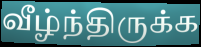
வீழ்ந்திருக்க